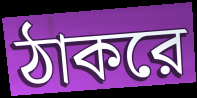
ঠাকরে